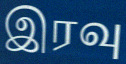
இரவு